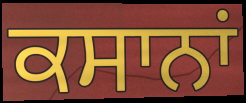
ਕਸਾਨਾਂ